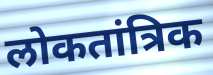
लोकतांत्रिक